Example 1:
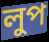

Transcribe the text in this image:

লুপ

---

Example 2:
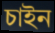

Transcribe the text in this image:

চাইন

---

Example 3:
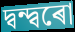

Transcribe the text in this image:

দ্বন্দ্বৰো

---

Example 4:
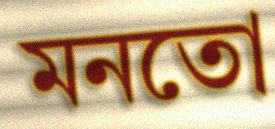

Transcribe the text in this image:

মনতো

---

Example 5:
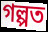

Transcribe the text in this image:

গল্পত